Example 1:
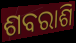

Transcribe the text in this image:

ଶବରାଶି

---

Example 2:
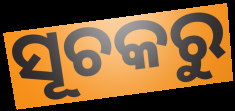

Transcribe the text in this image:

ସୂଚକରୁ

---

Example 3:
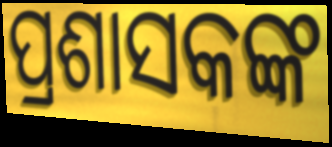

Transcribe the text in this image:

ପ୍ରଶାସକଙ୍କ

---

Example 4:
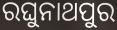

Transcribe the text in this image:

ରଘୁନାଥପୁର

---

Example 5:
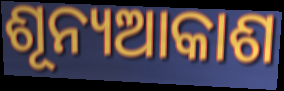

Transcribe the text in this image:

ଶୂନ୍ୟଆକାଶ